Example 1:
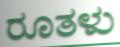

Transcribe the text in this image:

ರೂತಳು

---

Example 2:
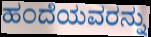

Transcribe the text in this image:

ಹಂದೆಯವರನ್ನು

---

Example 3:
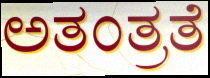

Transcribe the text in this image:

ಅತಂತ್ರತೆ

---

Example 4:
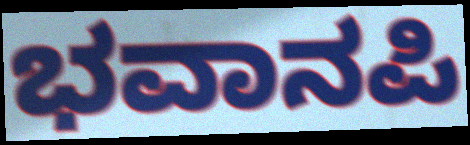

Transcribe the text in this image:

ಭವಾನಪಿ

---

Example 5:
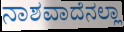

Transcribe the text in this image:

ನಾಶವಾದೆನಲ್ಲಾ